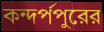
কন্দর্পপুরের